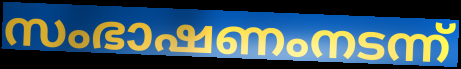
സംഭാഷണംനടന്ന്